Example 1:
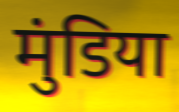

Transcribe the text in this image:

मुंडिया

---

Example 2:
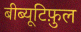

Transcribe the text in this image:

बीब्यूटिफ़ुल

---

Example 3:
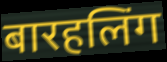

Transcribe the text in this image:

बारहलिंग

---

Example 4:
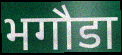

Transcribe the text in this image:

भगौडा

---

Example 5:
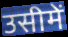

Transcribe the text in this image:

उसीमें